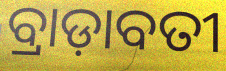
ବ୍ରାଡ଼ାବତୀ